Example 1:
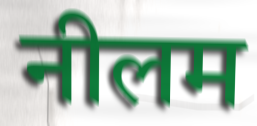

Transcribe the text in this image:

नीलम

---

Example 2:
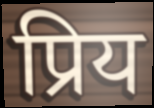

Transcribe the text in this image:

प्रिय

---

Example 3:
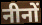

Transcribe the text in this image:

नीनों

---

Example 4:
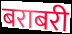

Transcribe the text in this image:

बराबरी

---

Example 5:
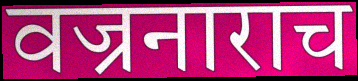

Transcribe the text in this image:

वज्रनाराच